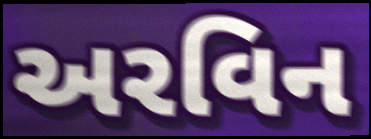
અરવિન